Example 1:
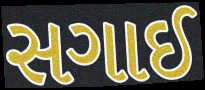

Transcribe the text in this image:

સગાઈ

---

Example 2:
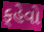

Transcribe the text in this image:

ક્‌હેવો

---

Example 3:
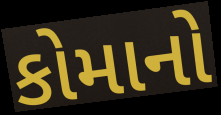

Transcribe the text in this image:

કોમાનો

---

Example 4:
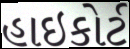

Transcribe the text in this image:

હાઇકોર્ટ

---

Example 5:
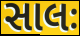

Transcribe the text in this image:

સાલઃ